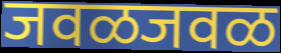
जवळजवळ